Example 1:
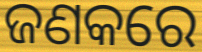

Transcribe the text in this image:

ଜଣକରେ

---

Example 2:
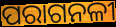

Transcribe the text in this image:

ପରାଗନଳୀ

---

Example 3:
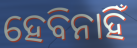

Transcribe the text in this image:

ହେବିନାହିଁ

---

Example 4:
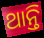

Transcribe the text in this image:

ଥାନ୍ତି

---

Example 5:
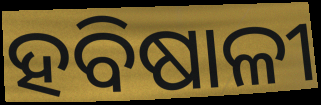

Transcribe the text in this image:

ହବିଷାଳୀ